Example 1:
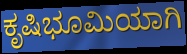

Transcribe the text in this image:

ಕೃಷಿಭೂಮಿಯಾಗಿ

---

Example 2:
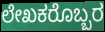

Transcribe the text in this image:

ಲೇಖಕರೊಬ್ಬರ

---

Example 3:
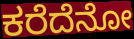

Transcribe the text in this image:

ಕರೆದೆನೋ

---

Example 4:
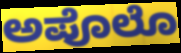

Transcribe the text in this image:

ಅಪೊಲೊ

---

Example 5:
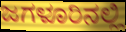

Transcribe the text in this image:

ಜಗಳೂರಿನಲ್ಲಿ